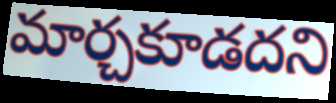
మార్చకూడదని